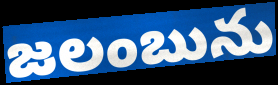
జలంబును